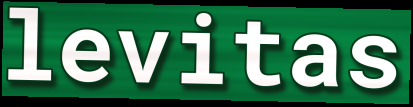
levitas